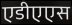
एडीएएस